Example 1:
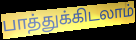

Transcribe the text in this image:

பாத்துக்கிடலாம்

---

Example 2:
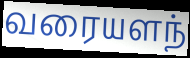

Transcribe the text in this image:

வரையளந்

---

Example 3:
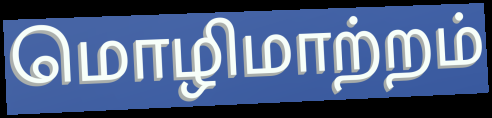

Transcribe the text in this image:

மொழிமாற்றம்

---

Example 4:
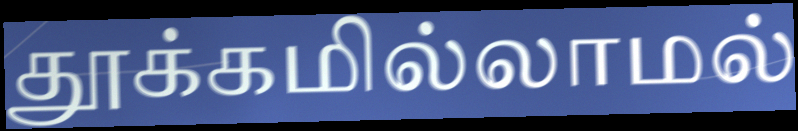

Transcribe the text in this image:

தூக்கமில்லாமல்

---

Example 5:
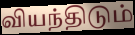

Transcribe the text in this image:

வியந்திடும்